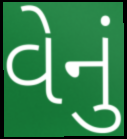
વેનું